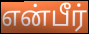
என்பீர்